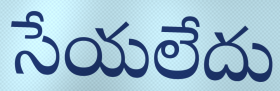
సేయలేదు